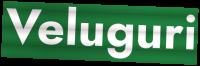
Veluguri